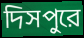
দিসপুরে